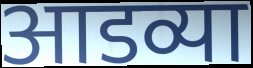
आडव्या